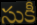
సుకీ